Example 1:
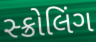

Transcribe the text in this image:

સ્ક્રોલિંગ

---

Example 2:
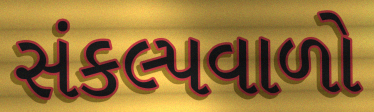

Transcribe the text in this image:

સંકલ્પવાળો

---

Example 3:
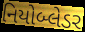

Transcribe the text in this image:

નિયોબ્લેડર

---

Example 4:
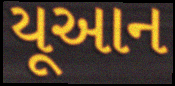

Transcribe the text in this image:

યૂઆન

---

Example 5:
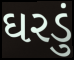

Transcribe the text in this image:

ઘરડું